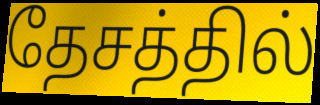
தேசத்தில்